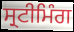
ਸ੍ਰਟੀਮਿੰਗ